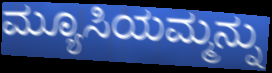
ಮ್ಯೂಸಿಯಮ್ಮನ್ನು